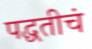
पद्धतीचं